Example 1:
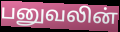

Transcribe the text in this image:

பனுவலின்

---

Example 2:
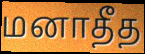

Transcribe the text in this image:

மனாதீத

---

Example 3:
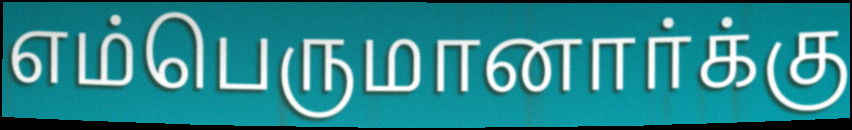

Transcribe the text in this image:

எம்பெருமானார்க்கு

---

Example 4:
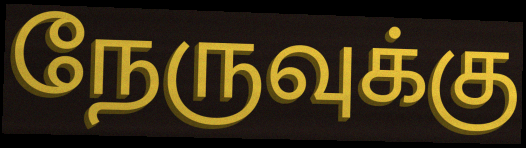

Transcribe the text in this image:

நேருவுக்கு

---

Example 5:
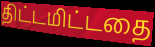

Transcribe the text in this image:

திட்டமிட்டதை